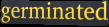
germinated